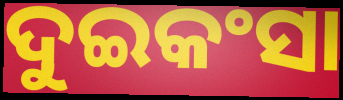
ଦୁଇକଂସା